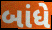
બાંધે